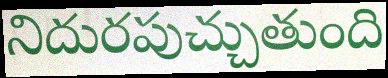
నిదురపుచ్చుతుంది